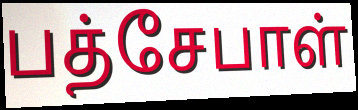
பத்சேபாள்